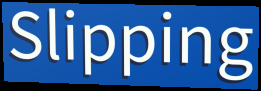
Slipping